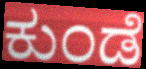
ಕುಂಡೆ